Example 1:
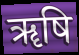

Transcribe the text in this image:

ॠषि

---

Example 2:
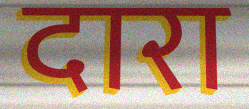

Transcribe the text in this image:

दारा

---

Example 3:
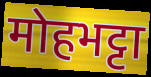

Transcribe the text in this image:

मोहभट्टा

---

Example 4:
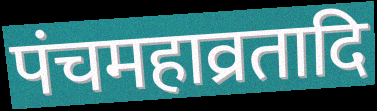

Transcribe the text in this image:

पंचमहाव्रतादि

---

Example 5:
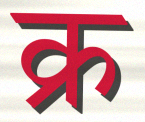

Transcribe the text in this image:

क्र